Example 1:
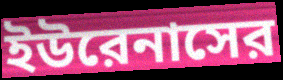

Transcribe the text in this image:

ইউরেনাসের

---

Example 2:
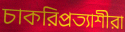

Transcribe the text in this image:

চাকরিপ্রত্যাশীরা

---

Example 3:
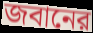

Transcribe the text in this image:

জবানের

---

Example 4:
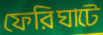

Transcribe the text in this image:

ফেরিঘাটে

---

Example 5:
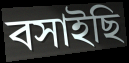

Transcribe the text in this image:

বসাইছি